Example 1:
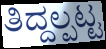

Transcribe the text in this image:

ತಿದ್ದಲ್ಪಟ್ಟ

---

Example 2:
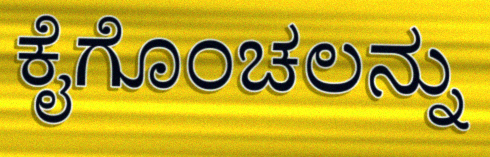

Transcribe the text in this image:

ಕೈಗೊಂಚಲನ್ನು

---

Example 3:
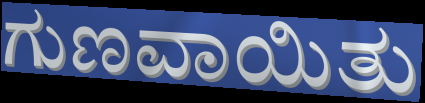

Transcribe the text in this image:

ಗುಣವಾಯಿತು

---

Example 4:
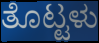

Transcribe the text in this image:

ತೊಟ್ಟಳು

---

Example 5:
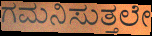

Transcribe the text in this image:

ಗಮನಿಸುತ್ತಲೇ